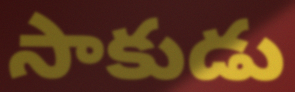
సాకుడు